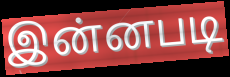
இன்னபடி